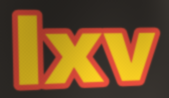
lxv